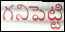
గనిపెట్టి